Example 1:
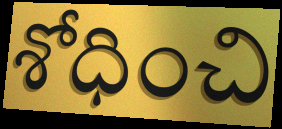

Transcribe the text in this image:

శోధించి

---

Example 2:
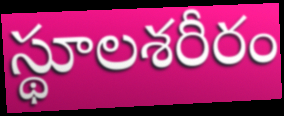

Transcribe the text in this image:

స్థూలశరీరం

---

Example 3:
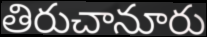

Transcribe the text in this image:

తిరుచానూరు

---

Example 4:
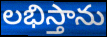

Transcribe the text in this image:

లభిస్తాను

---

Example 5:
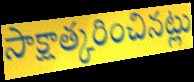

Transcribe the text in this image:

సాక్షాత్కరించినట్లు